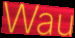
Wau